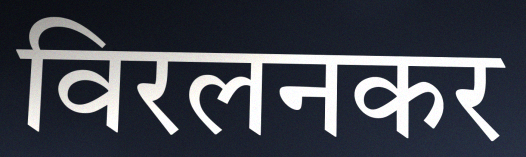
विरलनकर